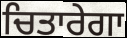
ਚਿਤਾਰੇਗਾ